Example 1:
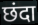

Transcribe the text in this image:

छंदा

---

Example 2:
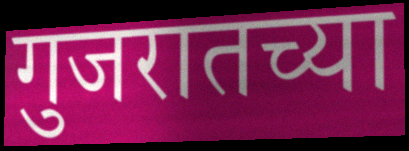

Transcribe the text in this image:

गुजरातच्या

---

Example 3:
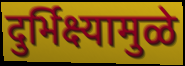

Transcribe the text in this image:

दुर्भिक्ष्यामुळे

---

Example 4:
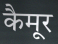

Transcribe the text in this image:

कैमूर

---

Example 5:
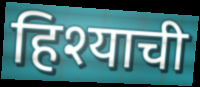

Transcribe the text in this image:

हिश्याची